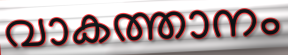
വാകത്താനം